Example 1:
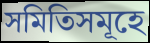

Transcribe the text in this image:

সমিতিসমূহে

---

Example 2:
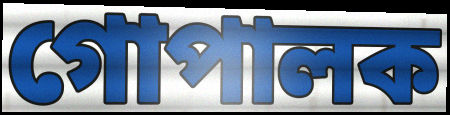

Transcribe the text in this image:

গোপালক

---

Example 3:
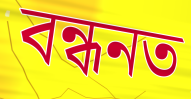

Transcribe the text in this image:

বন্ধনত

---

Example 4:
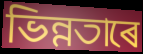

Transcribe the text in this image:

ভিন্নতাৰে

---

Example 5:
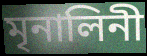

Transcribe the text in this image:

মৃনালিনী